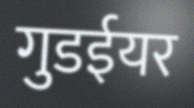
गुडईयर